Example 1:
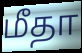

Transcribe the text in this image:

மீதா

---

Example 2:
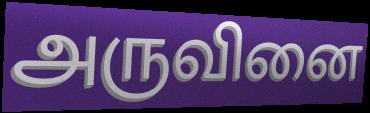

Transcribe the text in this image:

அருவினை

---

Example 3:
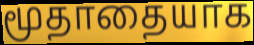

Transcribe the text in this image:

மூதாதையாக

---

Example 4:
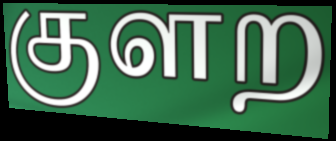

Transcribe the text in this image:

குளற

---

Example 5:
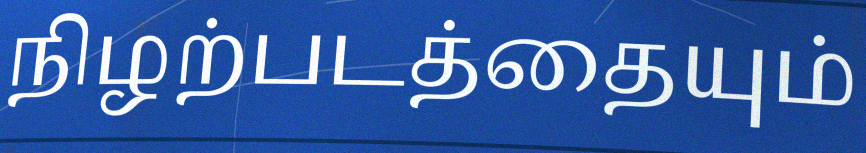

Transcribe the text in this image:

நிழற்படத்தையும்